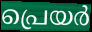
പ്രെയർ